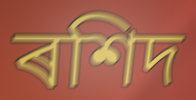
ৰশিদ